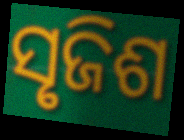
ସୃଜିଶ